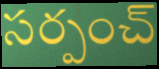
సర్పంచ్